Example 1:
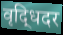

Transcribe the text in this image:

वृद्धिदर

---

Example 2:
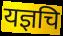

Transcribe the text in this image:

यज्ञचि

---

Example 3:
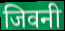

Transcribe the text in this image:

जिवनी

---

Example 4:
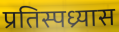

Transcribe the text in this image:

प्रतिस्पध्र्यास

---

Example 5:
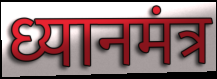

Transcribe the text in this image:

ध्यानमंत्र